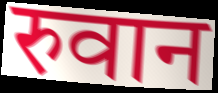
रुवान